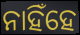
ନାହିଁହେ